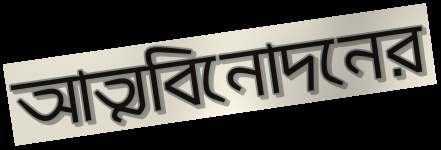
আত্মবিনোদনের